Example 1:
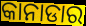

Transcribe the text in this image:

କାନାଡାର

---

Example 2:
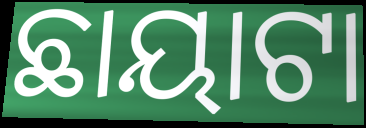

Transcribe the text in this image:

ଛାୟାଟା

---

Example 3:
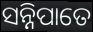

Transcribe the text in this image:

ସନ୍ନିପାତେ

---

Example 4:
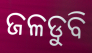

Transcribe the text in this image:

ଜଳଡୁବି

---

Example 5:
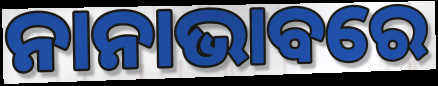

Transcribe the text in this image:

ନାନାଭାବରେ